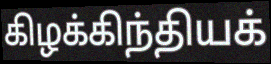
கிழக்கிந்தியக்